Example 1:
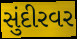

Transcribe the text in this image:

સુંદીરવર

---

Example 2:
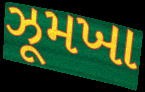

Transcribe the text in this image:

ઝૂમખા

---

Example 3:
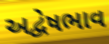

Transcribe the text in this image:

અદ્વેષભાવ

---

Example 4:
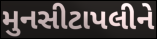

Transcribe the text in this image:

મુનસીટાપલીને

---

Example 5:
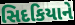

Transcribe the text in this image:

સિદકિયાને